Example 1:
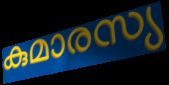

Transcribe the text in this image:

കുമാരസ്യ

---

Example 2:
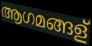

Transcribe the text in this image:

ആഗമങ്ങള്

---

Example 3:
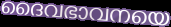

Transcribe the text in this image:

ദൈവഭാവനയെ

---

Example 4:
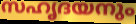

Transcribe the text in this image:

സഹൃദയനും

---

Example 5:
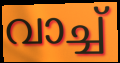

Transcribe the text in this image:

വാച്ച്